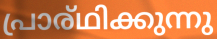
പ്രാര്ഥിക്കുന്നു